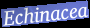
Echinacea